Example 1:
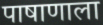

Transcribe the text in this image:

पाषाणाला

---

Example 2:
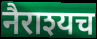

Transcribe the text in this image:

नैराश्यच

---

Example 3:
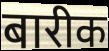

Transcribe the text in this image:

बारीक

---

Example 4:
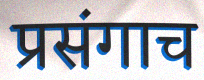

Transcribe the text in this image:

प्रसंगाच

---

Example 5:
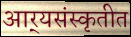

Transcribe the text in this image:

आर्यसंस्कृतीत